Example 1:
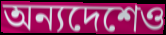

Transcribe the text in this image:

অন্যদেশেও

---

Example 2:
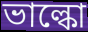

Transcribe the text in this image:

ভাল্কো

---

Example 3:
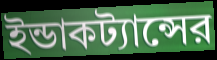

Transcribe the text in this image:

ইন্ডাকট্যান্সের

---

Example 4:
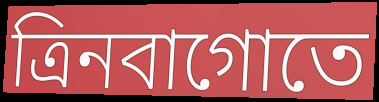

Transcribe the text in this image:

ত্রিনবাগোতে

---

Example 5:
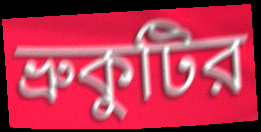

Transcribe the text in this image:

ভ্রুকুটির